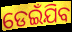
ଡେଇଁଯିବ